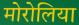
मोरोलिया